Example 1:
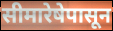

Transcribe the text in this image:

सीमारेषेपासून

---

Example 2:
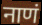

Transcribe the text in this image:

नाणं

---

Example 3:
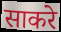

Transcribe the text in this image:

साकरे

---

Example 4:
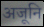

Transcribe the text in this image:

अजूनि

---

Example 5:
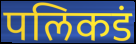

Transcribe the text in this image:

पलिकडं